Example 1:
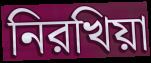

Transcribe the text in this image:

নিরখিয়া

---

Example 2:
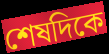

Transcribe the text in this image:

শেষদিকে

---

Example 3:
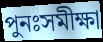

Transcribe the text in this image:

পুনঃসমীক্ষা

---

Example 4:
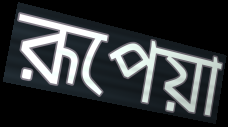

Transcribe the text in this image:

রূপেয়া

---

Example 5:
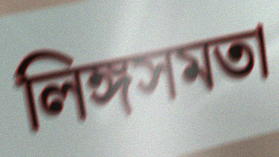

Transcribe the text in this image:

লিঙ্গসমতা